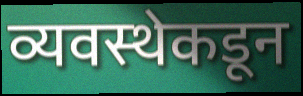
व्यवस्थेकडून